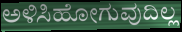
ಅಳಿಸಿಹೋಗುವುದಿಲ್ಲ